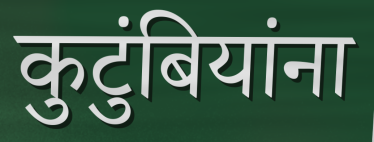
कुटुंबियांना